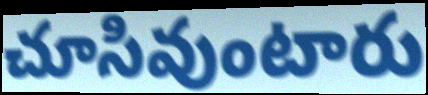
చూసివుంటారు